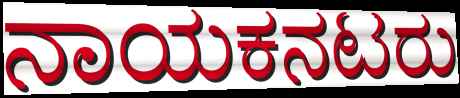
ನಾಯಕನಟರು